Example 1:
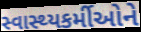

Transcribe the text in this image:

સ્વાસ્થ્યકર્મીઓને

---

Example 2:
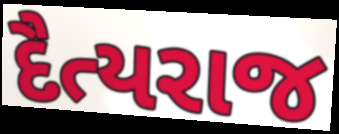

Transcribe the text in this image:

દૈત્યરાજ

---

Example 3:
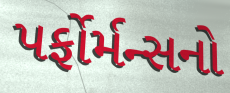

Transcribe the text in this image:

પર્ફોર્મન્સનો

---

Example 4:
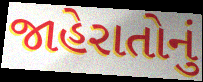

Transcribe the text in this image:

જાહેરાતોનું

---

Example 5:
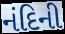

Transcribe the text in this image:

નંદિની